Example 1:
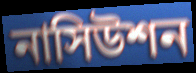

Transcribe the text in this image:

নাসিউশন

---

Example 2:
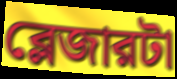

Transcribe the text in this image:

ব্লেজারটা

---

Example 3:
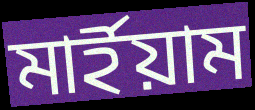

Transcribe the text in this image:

মার্ইয়াম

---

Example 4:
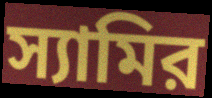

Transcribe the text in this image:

স্যামির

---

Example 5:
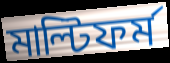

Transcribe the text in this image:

মাল্টিফর্ম